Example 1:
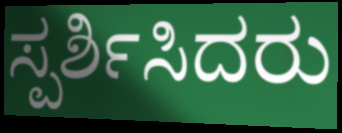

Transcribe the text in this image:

ಸ್ಪರ್ಶಿಸಿದರು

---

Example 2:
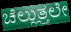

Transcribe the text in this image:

ಚೆಲ್ಲುತ್ತಲೇ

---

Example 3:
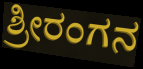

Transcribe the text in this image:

ಶ್ರೀರಂಗನ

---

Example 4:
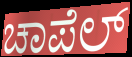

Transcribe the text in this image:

ಚಾಪೆಲ್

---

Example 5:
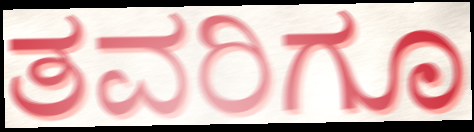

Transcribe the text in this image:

ತವರಿಗೂ